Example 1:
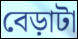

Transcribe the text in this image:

বেড়াটা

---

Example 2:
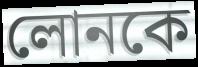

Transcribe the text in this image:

লোনকে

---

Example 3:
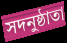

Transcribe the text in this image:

সদনুষ্ঠাতা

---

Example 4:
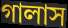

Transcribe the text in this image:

গালাস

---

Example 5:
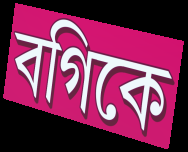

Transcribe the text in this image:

বগিকে